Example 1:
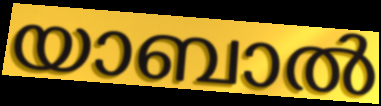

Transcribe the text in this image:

യാബാൽ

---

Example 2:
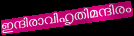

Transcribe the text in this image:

ഇന്ദിരാവിഹൃതിമന്ദിരം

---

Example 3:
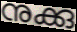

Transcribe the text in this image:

നുക്കു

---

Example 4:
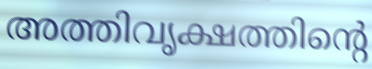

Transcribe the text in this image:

അത്തിവൃക്ഷത്തിന്റെ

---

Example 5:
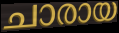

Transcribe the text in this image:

ചാരായ